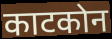
काटकोन